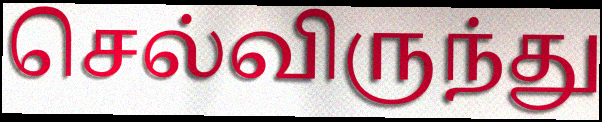
செல்விருந்து